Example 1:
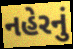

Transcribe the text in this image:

નહેરનું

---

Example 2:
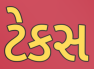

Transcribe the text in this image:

ટેકસ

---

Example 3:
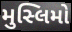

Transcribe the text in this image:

મુસ્લિમો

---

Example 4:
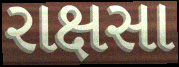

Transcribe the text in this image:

રાક્ષસા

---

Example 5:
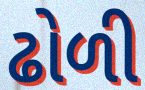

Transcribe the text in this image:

ઢોળી